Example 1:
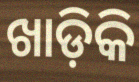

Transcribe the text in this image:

ଖାଡ଼ିକି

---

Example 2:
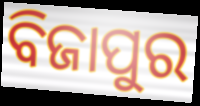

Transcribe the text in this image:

ବିଜାପୁର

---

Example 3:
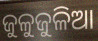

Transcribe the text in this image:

ଜୁଳୁଜୁଳିଆ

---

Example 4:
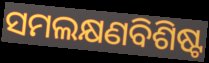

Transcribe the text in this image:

ସମଲକ୍ଷଣବିଶିଷ୍ଟ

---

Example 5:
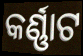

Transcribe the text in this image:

କର୍ଣ୍ଣାଟ